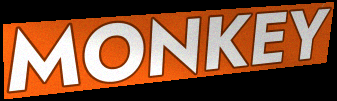
MONKEY